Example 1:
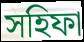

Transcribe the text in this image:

সহিফা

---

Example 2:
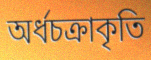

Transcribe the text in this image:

অর্ধচক্রাকৃতি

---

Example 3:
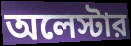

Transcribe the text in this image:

অলেস্টার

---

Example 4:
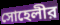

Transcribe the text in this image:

সোহেলীর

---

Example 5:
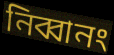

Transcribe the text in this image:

নিব্বানং